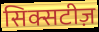
सिक्सटीज़